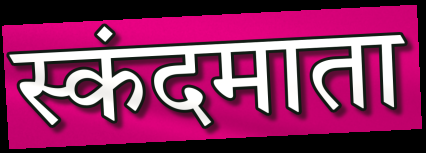
स्‍कंदमाता